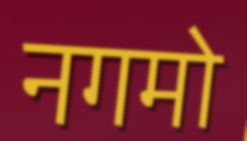
नगमो